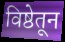
विष्ठेतून